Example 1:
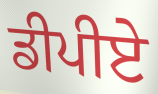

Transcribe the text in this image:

ਡੀਪੀਏ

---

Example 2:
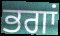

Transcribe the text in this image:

ਭਗਾਂ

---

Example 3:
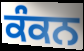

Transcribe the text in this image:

ਕੰਕਨ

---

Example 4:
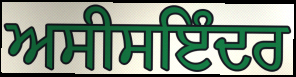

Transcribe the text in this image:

ਅਸੀਸਇੰਦਰ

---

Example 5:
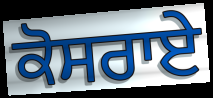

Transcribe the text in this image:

ਕੋਸਰਾਏ